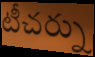
టీచర్ను